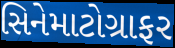
સિનેમાટોગ્રાફર